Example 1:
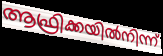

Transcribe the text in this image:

ആഫ്രിക്കയിൽനിന്ന്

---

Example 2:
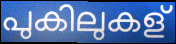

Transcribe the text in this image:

പുകിലുകള്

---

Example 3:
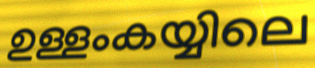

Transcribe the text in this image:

ഉള്ളംകയ്യിലെ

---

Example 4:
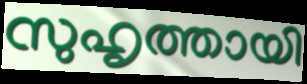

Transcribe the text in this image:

സുഹൃത്തായി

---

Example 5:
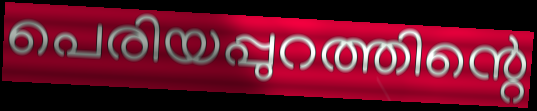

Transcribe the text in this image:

പെരിയപ്പുറത്തിന്റെ